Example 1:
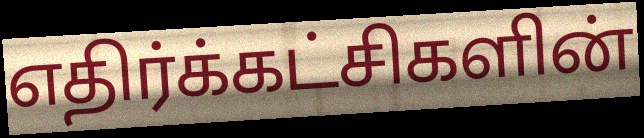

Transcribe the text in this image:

எதிர்க்கட்சிகளின்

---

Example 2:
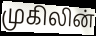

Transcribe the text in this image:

முகிலின்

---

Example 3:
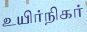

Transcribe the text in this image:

உயிர்நிகர்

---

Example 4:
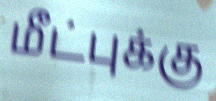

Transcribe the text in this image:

மீட்புக்கு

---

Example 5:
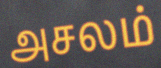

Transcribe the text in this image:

அசலம்